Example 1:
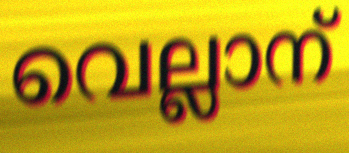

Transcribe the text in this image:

വെല്ലാന്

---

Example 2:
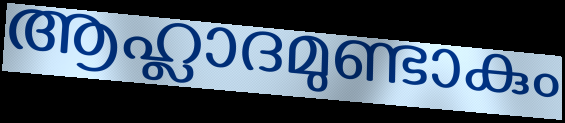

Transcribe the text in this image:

ആഹ്ലാദമുണ്ടാകും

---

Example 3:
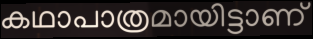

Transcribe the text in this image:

കഥാപാത്രമായിട്ടാണ്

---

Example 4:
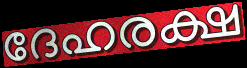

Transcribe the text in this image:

ദേഹരക്ഷ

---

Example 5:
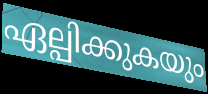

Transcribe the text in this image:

ഏല്പിക്കുകയും